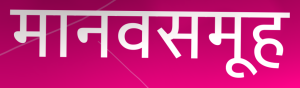
मानवसमूह